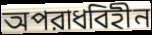
অপরাধবিহীন